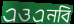
এওএনবি